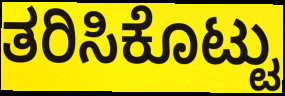
ತರಿಸಿಕೊಟ್ಟು